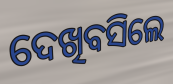
ଦେଖିବସିଲେ